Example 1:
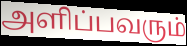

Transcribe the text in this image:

அளிப்பவரும்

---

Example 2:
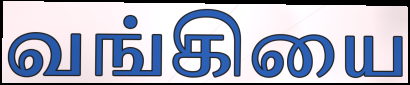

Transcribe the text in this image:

வங்கியை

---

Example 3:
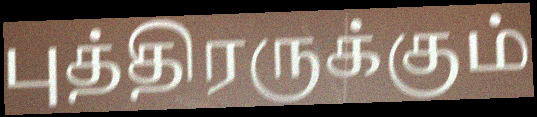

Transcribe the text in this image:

புத்திரருக்கும்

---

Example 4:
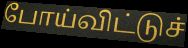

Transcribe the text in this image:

போய்விட்டுச்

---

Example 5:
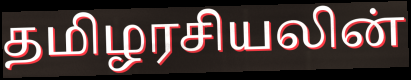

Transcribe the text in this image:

தமிழரசியலின்